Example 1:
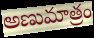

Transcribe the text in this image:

అణుమాత్రం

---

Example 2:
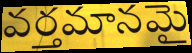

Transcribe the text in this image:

వర్తమానమై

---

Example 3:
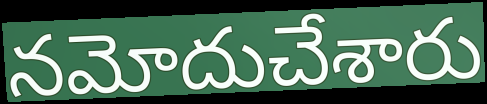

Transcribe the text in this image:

నమోదుచేశారు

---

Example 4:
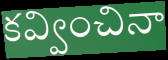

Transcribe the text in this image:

కవ్వించినా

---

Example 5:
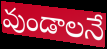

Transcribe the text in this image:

వుండాలనే